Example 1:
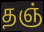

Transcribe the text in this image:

தஞ்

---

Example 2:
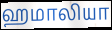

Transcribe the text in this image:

ஹமாலியா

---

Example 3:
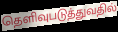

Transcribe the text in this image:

தெளிவுபடுத்துவதில்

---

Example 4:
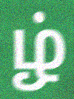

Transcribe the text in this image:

ழ்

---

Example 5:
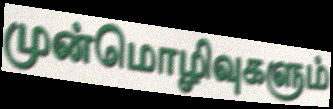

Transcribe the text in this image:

முன்மொழிவுகளும்